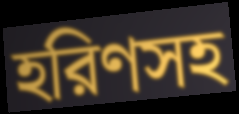
হরিণসহ